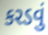
કરડવું